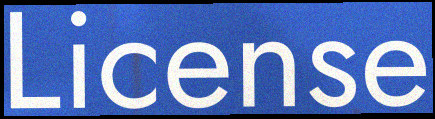
License